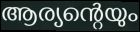
ആര്യന്റെയും